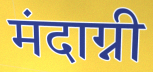
मंदाग्नी